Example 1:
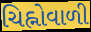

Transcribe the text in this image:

ચિહ્નોવાળી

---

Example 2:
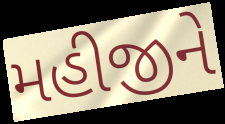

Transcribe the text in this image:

મહીજીને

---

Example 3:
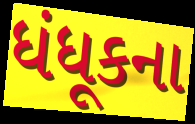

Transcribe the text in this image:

ધંધૂકના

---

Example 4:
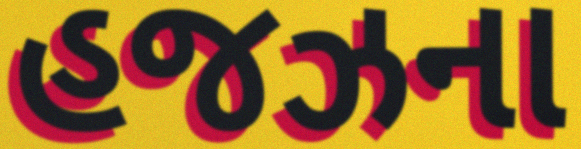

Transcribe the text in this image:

હજઝના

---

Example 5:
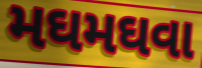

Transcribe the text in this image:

મઘમઘવા